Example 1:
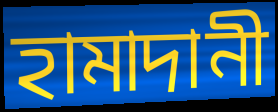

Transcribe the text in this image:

হামাদানী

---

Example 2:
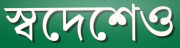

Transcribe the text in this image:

স্বদেশেও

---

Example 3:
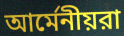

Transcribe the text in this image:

আর্মেনীয়রা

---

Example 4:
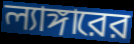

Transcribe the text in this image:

ল্যাঙ্গারের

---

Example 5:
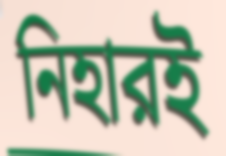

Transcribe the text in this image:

নিহারই